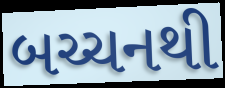
બચ્ચનથી